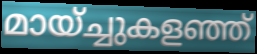
മായ്ച്ചുകളഞ്ഞ്